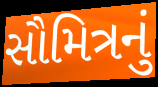
સૌમિત્રનું